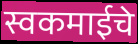
स्वकमाईचे